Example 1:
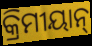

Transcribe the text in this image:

କ୍ରିମୀୟାନ୍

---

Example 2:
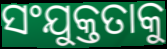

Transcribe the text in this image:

ସଂଯୁକ୍ତତାକୁ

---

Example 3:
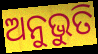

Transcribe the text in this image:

ଅନୁଭୁତି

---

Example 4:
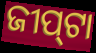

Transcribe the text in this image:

ଜୀପ୍‍ଟା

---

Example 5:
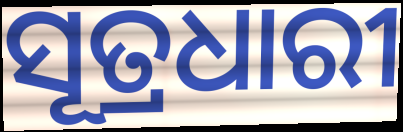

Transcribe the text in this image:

ସୂତ୍ରଧାରୀ